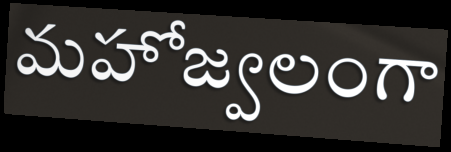
మహోజ్వలంగా